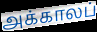
அக்காலப்